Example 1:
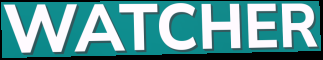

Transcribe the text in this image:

WATCHER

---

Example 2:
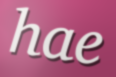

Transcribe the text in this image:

hae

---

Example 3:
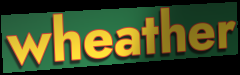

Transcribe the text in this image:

wheather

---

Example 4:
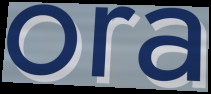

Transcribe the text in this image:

ora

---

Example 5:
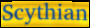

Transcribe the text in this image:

Scythian